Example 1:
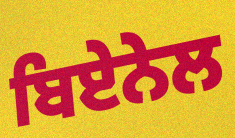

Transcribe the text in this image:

ਬਿਏਨੇਲ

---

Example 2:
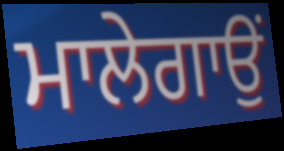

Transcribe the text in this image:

ਮਾਲੇਗਾਉਂ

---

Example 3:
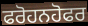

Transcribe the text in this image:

ਫਰੋਹਨਹੋਫਰ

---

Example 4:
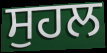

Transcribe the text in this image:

ਸੁਹਲ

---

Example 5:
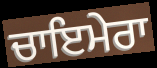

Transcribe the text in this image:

ਚਾਇਮੇਰਾ